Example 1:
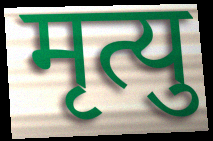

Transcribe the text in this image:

मृत्यु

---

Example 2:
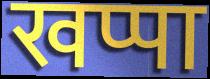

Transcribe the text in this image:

खप्पा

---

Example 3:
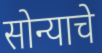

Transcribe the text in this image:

सोन्याचे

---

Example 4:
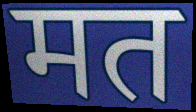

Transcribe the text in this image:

मत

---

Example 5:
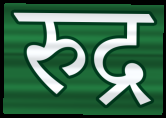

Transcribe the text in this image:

रुद्र